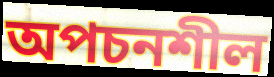
অপচনশীল